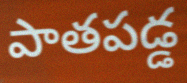
పాతపడ్డ